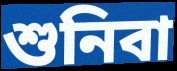
শুনিবা